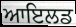
ਆਇਲਡ